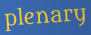
plenary